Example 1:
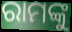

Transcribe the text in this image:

ରାମଙ୍କୁ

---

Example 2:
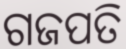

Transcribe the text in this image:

ଗଜପତି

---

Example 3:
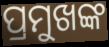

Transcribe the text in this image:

ପ୍ରମୁଖଙ୍କ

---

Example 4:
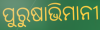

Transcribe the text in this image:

ପୁରୁଷାଭିମାନୀ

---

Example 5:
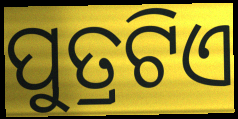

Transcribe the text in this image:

ପୁତ୍ରଟିଏ